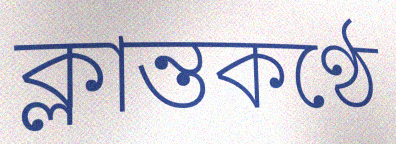
ক্লান্তকণ্ঠে